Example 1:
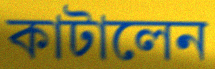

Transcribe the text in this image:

কাটালেন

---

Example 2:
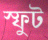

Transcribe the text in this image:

স্ফুট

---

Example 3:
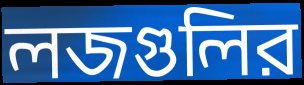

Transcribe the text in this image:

লজগুলির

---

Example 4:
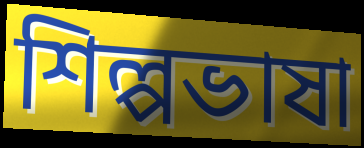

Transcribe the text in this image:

শিল্পভাষা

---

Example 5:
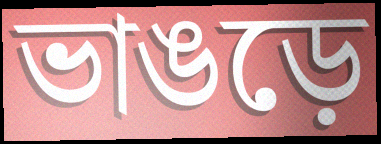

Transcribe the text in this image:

ভাঙড়ে